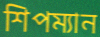
শিপম্যান